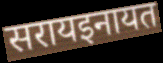
सरायइनायत